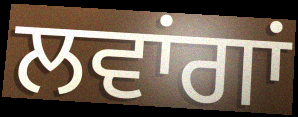
ਲਵਾਂਗਾਂ